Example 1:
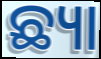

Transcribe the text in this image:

ଛ୍ୟା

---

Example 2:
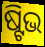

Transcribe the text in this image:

ଷ୍ଟିଭ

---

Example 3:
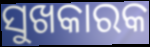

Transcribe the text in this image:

ସୁଖକାରକ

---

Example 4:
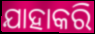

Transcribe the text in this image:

ଯାହାକରି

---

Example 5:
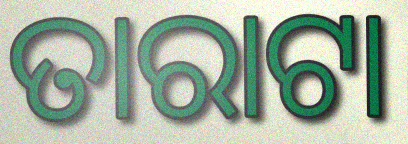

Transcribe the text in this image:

ତାରାଟା